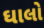
ઘાલો